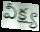
వీక్ష్య